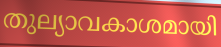
തുല്യാവകാശമായി